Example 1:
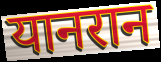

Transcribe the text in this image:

यानरान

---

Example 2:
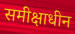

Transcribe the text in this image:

समीक्षाधीन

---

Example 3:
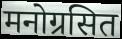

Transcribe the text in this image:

मनोग्रसित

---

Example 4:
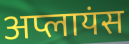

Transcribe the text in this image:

अप्‍लायंस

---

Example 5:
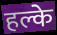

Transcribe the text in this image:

हल्के